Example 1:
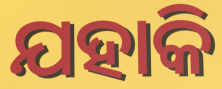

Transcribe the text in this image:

ଯହାକି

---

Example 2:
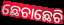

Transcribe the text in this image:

ଛେଚାଛେଚି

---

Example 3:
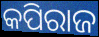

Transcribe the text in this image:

କପିରାଜ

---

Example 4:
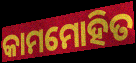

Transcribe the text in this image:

କାମମୋହିତ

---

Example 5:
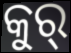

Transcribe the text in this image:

କୁର୍